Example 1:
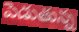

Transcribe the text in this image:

పెడుతున్న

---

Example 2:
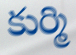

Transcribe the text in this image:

కుర్మి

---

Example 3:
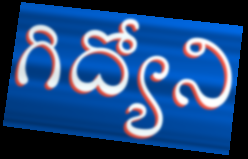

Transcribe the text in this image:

గిద్యోని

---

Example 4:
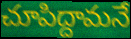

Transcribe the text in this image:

చూపిద్దామనే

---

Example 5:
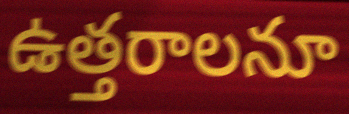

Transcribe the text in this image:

ఉత్తరాలనూ